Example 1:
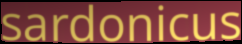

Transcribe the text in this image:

sardonicus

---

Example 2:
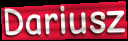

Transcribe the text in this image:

Dariusz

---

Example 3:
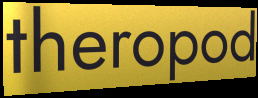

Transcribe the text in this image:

theropod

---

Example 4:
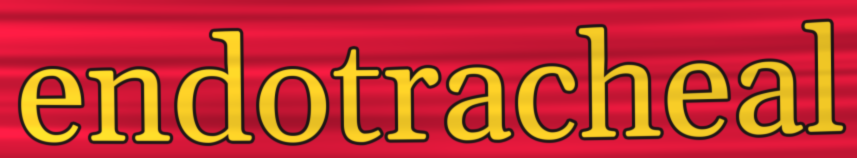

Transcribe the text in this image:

endotracheal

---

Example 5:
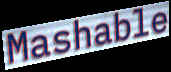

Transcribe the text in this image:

Mashable